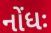
નોંધઃ